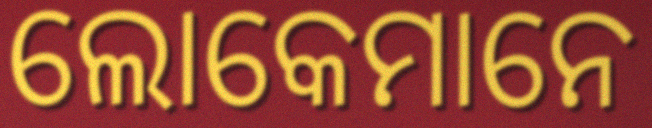
ଲୋକେମାନେ